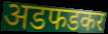
अडफडकर